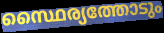
സ്ഥൈര്യത്തോടും